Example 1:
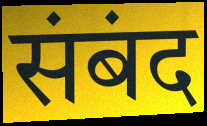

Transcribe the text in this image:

संबंद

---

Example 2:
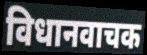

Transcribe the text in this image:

विधानवाचक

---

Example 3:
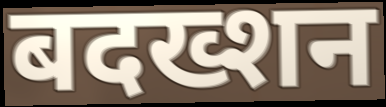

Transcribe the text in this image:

बदख्शन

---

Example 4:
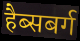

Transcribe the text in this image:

हैब्सबर्ग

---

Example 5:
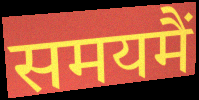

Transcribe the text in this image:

समयमैं